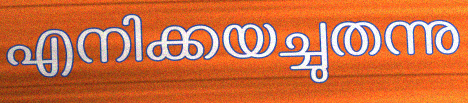
എനിക്കയച്ചുതന്നു